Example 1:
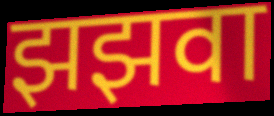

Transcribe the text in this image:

झझवा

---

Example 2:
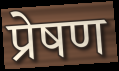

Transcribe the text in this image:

प्रेषण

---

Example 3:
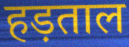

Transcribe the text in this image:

हड़ताल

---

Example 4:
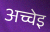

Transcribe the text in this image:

अच्चेइ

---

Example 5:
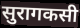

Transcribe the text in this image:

सुरागकसी